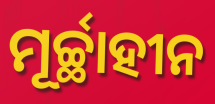
ମୂର୍ଚ୍ଛାହୀନ